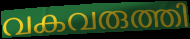
വകവരുത്തി